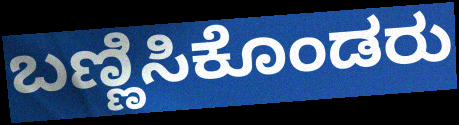
ಬಣ್ಣಿಸಿಕೊಂಡರು